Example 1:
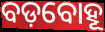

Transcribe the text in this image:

ବଡ଼ବୋହୂ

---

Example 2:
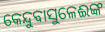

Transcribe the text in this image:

କେନ୍ଦୁବାସୁଳେଈଙ୍କ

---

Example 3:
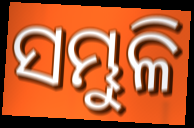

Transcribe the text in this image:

ସମ୍ଭୁଳି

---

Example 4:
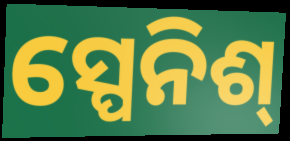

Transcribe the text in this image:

ସ୍ପେନିଶ୍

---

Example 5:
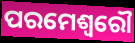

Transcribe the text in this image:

ପରମେଶ୍ଵରୌ